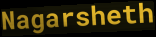
Nagarsheth